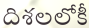
దిశలలోకీ